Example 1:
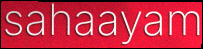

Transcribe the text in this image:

sahaayam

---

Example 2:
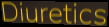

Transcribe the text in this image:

Diuretics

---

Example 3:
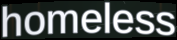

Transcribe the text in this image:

homeless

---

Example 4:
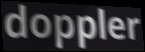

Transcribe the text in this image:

doppler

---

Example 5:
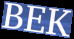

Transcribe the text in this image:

BEK